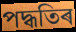
পদ্ধতিৰ